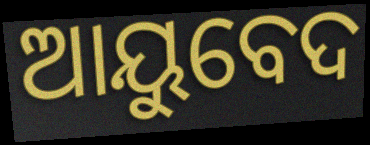
ଆୟୁବେଦ